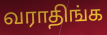
வராதிங்க